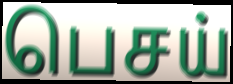
பெசய்